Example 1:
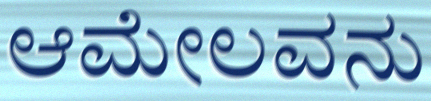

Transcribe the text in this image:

ಆಮೇಲವನು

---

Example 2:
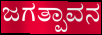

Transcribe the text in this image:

ಜಗತ್ಪಾವನ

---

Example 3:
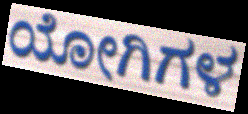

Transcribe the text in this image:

ಯೋಗಿಗಳ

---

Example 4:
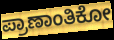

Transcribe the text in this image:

ಪ್ರಾಣಾಂತಿಕೋ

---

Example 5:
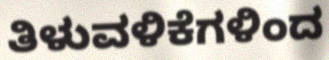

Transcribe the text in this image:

ತಿಳುವಳಿಕೆಗಳಿಂದ